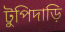
টুপিদাড়ি